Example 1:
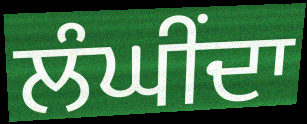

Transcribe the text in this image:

ਲੰਘੀਂਦਾ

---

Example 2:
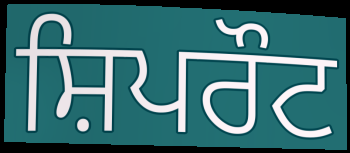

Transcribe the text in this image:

ਸ਼ਿਪਰੌਟ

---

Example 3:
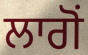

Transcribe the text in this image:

ਲਾਗੋਂ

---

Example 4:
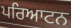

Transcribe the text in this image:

ਪਰਿਆਟਨ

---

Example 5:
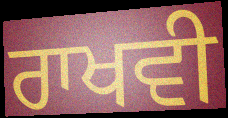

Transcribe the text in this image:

ਰਾਖਵੀ